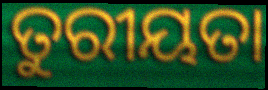
ତୁରୀୟତା